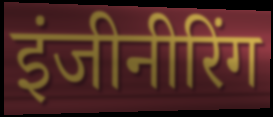
इंजीनीरिंग